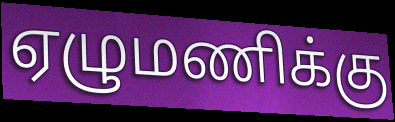
ஏழுமணிக்கு